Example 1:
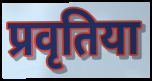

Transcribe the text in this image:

प्रवृतिया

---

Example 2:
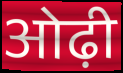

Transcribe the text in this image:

ओढ़ी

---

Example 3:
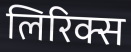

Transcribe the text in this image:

लिरिक्स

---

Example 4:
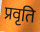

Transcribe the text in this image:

प्रवृति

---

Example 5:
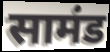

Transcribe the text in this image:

सामंड